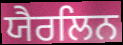
ਯੈਰਲਿਨ